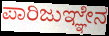
ಪಾರಿಜುಞ್ಞೇನ